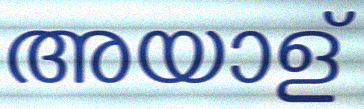
അയാള്